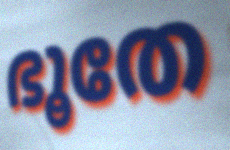
ഭൂതേ